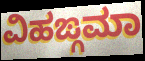
ವಿಹಙ್ಗಮಾ